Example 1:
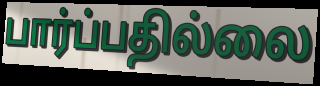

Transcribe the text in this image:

பார்ப்பதில்லை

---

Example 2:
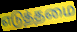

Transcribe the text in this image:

எடுத்தமை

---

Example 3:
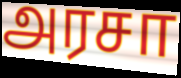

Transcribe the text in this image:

அரசா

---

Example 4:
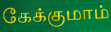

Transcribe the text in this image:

கேக்குமாம்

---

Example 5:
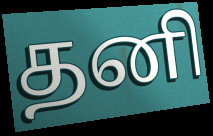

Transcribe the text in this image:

தனி